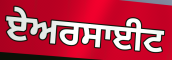
ਏਅਰਸਾਈਟ